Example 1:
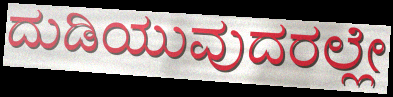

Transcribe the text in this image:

ದುಡಿಯುವುದರಲ್ಲೇ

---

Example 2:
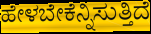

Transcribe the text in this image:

ಹೇಳಬೇಕೆನ್ನಿಸುತ್ತಿದೆ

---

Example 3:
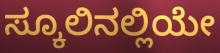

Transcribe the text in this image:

ಸ್ಕೂಲಿನಲ್ಲಿಯೇ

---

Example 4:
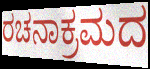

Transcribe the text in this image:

ರಚನಾಕ್ರಮದ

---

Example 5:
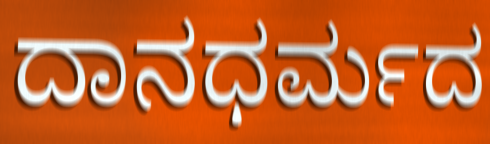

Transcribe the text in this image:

ದಾನಧರ್ಮದ